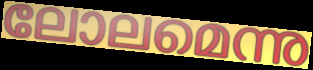
ലോലമെന്നു